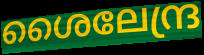
ശൈലേന്ദ്ര